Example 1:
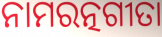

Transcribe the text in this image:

ନାମରତ୍ନଗୀତା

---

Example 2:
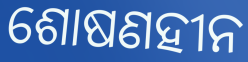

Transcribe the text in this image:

ଶୋଷଣହୀନ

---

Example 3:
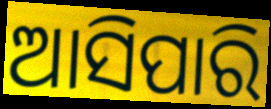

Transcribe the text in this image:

ଆସିପାରି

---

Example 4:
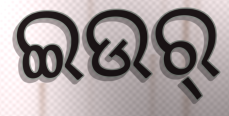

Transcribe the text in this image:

ଇଉର୍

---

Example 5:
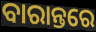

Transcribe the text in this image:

ବାରାନ୍ତରେ